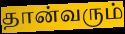
தான்வரும்